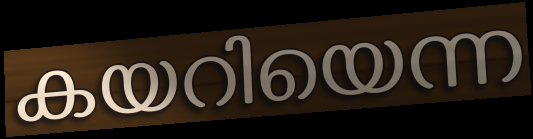
കയറിയെന്ന